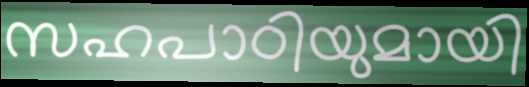
സഹപാഠിയുമായി